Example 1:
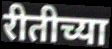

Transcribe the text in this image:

रीतीच्या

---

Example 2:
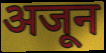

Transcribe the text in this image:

अजून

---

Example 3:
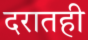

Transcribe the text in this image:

दरातही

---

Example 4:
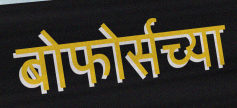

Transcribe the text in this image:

बोफोर्सच्या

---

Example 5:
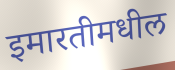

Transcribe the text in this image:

इमारतीमधील